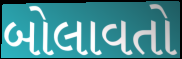
બોલાવતો